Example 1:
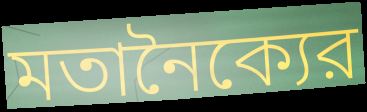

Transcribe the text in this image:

মতানৈক্যের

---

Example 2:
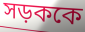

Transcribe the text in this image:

সড়ককে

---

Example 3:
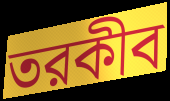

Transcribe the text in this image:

তরকীব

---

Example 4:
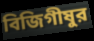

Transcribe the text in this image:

বিজিগীষুর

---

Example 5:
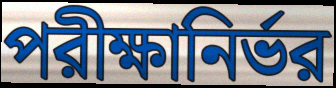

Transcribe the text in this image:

পরীক্ষানির্ভর